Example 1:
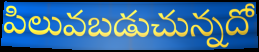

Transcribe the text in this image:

పిలువబడుచున్నదో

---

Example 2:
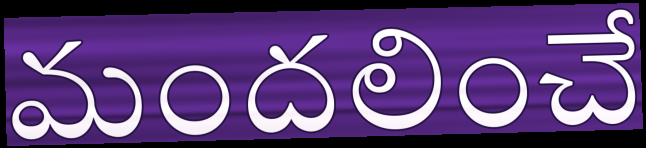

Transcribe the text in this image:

మందలించే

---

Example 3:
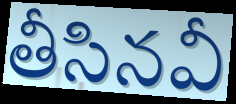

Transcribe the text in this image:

తీసినవీ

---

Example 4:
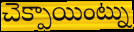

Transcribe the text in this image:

చెక్పాయింట్ను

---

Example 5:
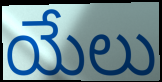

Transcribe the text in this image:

యేలు